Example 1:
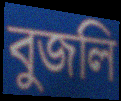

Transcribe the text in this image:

বুজলি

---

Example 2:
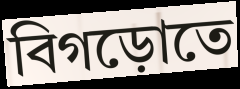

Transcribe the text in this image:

বিগড়োতে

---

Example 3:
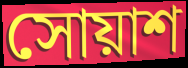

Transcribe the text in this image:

সোয়াশ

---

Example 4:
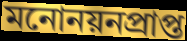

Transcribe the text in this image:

মনোনয়নপ্রাপ্ত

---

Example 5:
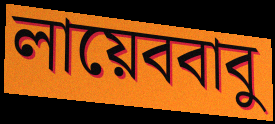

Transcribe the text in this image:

লায়েববাবু